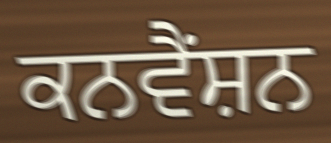
ਕਨਵੈੰਸ਼ਨ